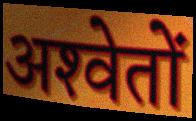
अश्‍वेतों